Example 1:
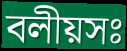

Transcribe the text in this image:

বলীয়সঃ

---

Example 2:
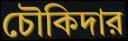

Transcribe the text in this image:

চৌকিদার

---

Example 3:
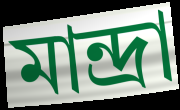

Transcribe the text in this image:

মান্দ্রা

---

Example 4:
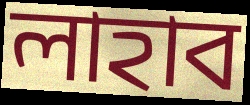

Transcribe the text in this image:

লাহাব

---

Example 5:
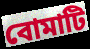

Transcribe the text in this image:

বোমাটি